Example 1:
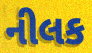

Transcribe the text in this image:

નીલક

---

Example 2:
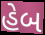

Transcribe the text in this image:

હેબ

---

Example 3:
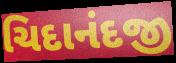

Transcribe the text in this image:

ચિદાનંદજી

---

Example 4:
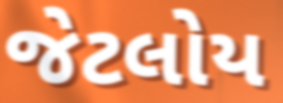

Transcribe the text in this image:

જેટલોય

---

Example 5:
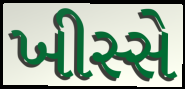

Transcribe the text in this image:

ખીસ્સે